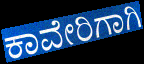
ಕಾವೇರಿಗಾಗಿ